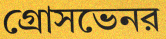
গ্রোসভেনর